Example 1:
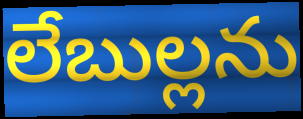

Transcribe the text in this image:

లేబుల్లను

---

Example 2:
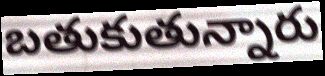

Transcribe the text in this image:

బతుకుతున్నారు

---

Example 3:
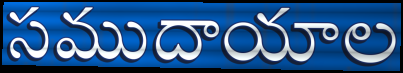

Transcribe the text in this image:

సముదాయాల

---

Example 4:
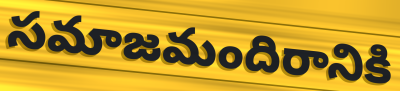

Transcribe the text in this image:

సమాజమందిరానికి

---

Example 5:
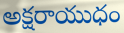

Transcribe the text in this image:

అక్షరాయుధం